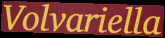
Volvariella